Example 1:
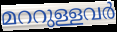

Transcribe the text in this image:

മററുള്ളവർ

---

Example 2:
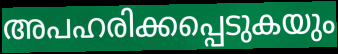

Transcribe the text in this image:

അപഹരിക്കപ്പെടുകയും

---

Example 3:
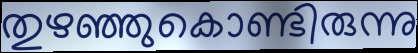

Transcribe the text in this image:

തുഴഞ്ഞുകൊണ്ടിരുന്നു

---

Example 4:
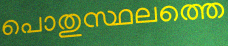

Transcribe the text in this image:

പൊതുസ്ഥലത്തെ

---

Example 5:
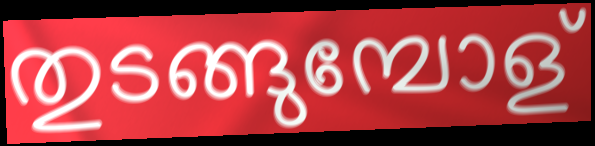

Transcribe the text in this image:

തുടങ്ങുമ്പോള്